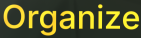
Organize